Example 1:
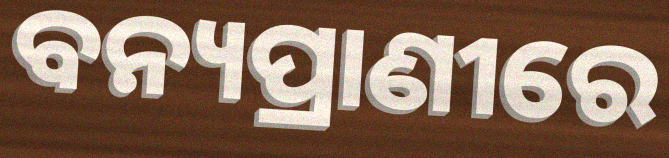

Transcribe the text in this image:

ବନ୍ୟପ୍ରାଣୀରେ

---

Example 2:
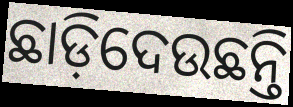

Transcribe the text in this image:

ଛାଡ଼ିଦେଉଛନ୍ତି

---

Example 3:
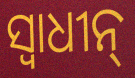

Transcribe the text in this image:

ସ୍ଵାଧୀନ୍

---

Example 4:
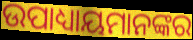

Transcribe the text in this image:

ଉପାଧ୍ୟାୟମାନଙ୍କର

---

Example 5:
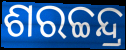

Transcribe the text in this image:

ଶରଚ୍ଚନ୍ଦ୍ର